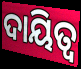
ଦାୟିତ୍ବ